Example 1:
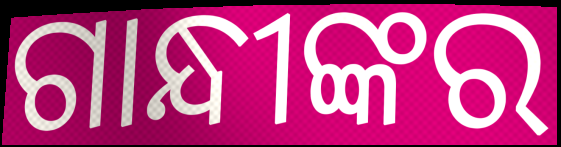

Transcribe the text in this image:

ଗାନ୍ଧୀଙ୍କର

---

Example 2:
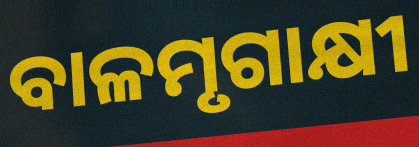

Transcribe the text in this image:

ବାଳମୃଗାକ୍ଷୀ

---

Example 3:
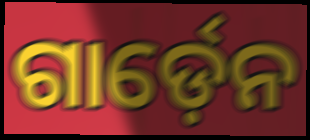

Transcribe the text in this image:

ଗାର୍ଡ଼େନ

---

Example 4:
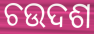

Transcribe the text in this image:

ଚଉଦଶ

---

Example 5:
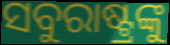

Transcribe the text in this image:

ସବୁରାଷ୍ଟ୍ରଙ୍କୁ